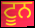
ਟੂਨ